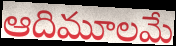
ఆదిమూలమే